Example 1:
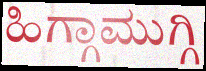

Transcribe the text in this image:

ಹಿಗ್ಗಾಮುಗ್ಗಿ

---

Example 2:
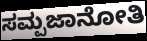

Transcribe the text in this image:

ಸಮ್ಪಜಾನೋತಿ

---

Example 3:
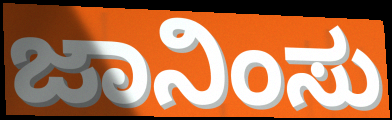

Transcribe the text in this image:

ಜಾನಿಂಸು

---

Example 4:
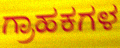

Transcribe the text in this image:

ಗ್ರಾಹಕಗಳ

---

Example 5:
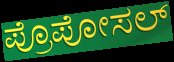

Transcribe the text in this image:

ಪ್ರೊಪೋಸಲ್